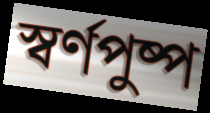
স্বর্ণপুষ্প